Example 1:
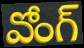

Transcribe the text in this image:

వోంగ్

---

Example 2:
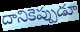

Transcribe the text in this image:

దానికెప్పుడూ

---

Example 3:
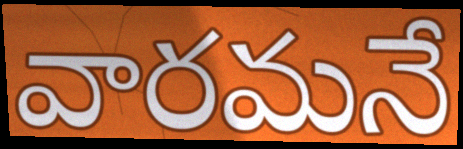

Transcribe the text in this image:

వారమనే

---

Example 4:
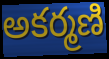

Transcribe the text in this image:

అకర్మణి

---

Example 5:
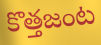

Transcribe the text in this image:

కొత్తజంట